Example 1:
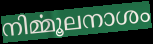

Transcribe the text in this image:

നിൎമ്മൂലനാശം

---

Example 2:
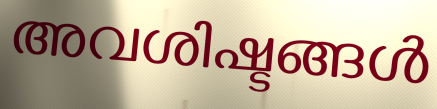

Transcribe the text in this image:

അവശിഷ്ടങ്ങൾ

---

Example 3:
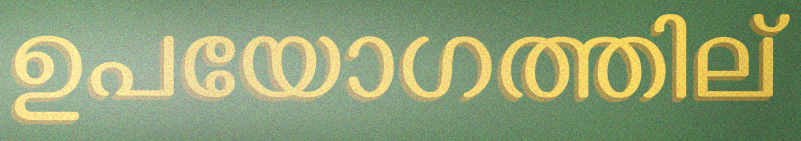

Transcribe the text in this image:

ഉപയോഗത്തില്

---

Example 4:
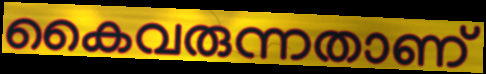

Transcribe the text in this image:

കൈവരുന്നതാണ്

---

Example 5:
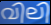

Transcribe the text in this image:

വിലി